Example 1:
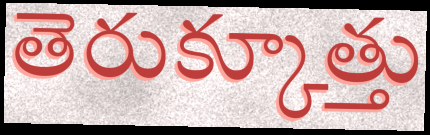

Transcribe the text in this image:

తెరుక్కూత్తు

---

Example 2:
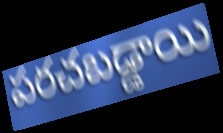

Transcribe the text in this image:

పరచబడ్డాయి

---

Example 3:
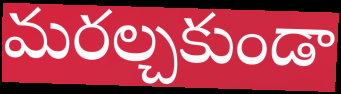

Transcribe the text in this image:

మరల్చకుండా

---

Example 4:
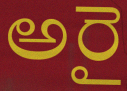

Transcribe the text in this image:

అరై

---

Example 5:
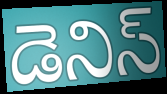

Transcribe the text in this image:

డెనిస్